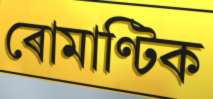
ৰোমাণ্টিক